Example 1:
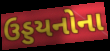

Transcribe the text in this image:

ઉડ્ડયનોના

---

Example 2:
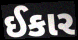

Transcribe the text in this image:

ઈકાર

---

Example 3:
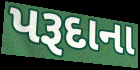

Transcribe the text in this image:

પરૂદાના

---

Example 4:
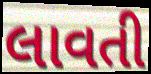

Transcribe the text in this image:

લાવતી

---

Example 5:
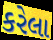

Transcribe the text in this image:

કરેલા